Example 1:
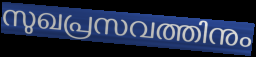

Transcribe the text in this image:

സുഖപ്രസവത്തിനും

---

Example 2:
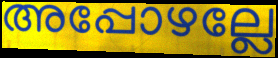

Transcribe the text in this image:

അപ്പോഴല്ലേ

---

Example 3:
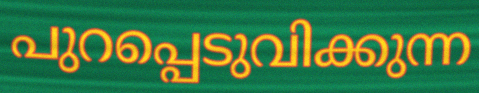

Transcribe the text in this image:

പുറപ്പെടുവിക്കുന്ന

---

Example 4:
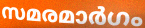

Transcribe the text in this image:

സമരമാർഗം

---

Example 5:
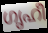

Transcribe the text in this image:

ഗൃഹീ